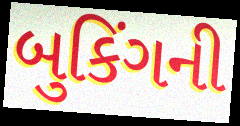
બુકિંગની